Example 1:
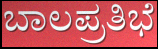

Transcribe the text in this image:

ಬಾಲಪ್ರತಿಭೆ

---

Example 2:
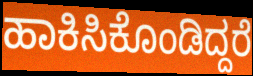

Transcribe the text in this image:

ಹಾಕಿಸಿಕೊಂಡಿದ್ದರೆ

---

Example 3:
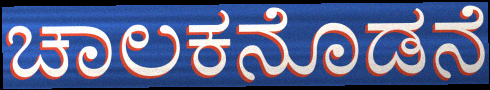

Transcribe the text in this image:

ಚಾಲಕನೊಡನೆ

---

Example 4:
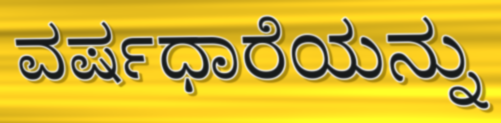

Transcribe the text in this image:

ವರ್ಷಧಾರೆಯನ್ನು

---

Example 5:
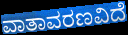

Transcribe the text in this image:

ವಾತಾವರಣವಿದೆ